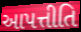
આપત્તીતિ